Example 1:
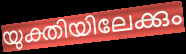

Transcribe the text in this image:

യുക്തിയിലേക്കും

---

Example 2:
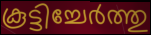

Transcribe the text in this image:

കൂട്ടിച്ചേർത്തു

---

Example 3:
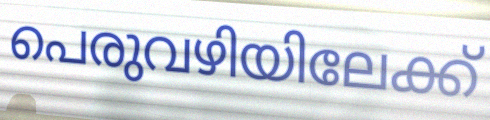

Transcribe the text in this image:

പെരുവഴിയിലേക്ക്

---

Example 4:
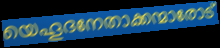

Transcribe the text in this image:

യെഹൂദനേതാക്കന്മാരോട്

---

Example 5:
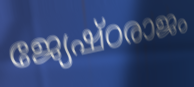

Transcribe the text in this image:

ജ്യേഷ്ഠരാജം